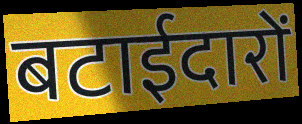
बटाईदारों